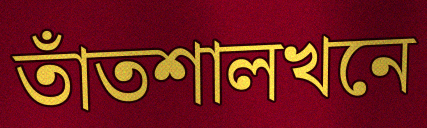
তাঁতশালখনে